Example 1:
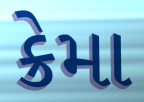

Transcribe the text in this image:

ક્રેમા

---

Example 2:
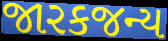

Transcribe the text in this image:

જારકજન્ય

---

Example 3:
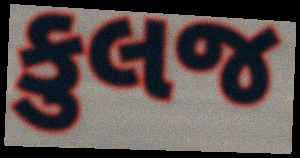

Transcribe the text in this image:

કુલજ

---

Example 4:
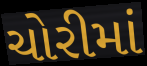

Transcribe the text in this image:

ચોરીમાં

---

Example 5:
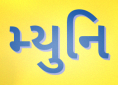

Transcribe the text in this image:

મ્યુનિ